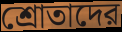
শ্রোতাদের